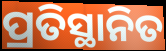
ପ୍ରତିସ୍ଥାନିତ